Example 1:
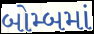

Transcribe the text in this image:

બોમ્બમાં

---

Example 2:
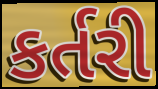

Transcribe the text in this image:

કર્તરી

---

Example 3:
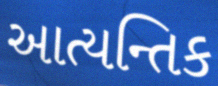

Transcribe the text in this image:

આત્યન્તિક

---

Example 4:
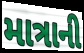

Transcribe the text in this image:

માત્રાની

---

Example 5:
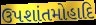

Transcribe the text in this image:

ઉપશાંતમોહાદિ